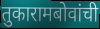
तुकारामबोवांची